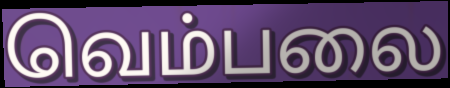
வெம்பலை